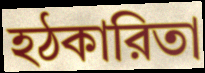
হঠকারিতা